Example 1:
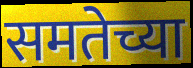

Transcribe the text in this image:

समतेच्या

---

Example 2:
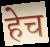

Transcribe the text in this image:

हेच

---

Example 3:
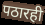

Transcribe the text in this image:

पठारही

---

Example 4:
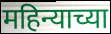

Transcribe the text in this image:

महिन्याच्या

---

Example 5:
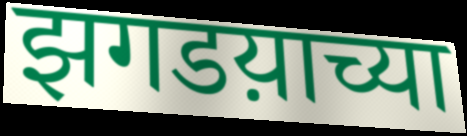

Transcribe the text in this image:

झगडय़ाच्या